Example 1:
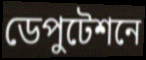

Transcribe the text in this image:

ডেপুটেশনে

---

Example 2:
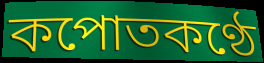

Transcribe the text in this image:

কপোতকণ্ঠে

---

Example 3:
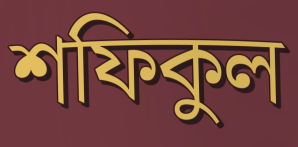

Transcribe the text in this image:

শফিকুল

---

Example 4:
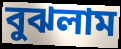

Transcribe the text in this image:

বুঝলাম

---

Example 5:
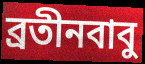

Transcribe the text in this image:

ব্রতীনবাবু